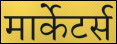
मार्केटर्स